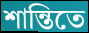
শান্তিতে